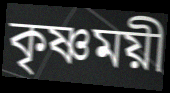
কৃষ্ণময়ী